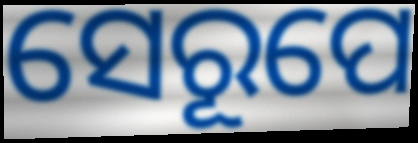
ସେରୂପେ